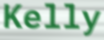
Kelly